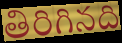
తిరిగినది